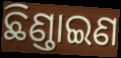
ଛିଣ୍ଡାଇଣ